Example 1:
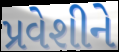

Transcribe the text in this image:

પ્રવેશીને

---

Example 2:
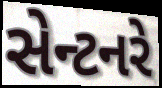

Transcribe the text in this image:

સેન્ટનરે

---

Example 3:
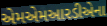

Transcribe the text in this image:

એમએમઆરડીએના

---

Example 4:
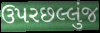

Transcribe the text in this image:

ઉપરછલ્લુંજ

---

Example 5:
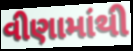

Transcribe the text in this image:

વીણામાંથી